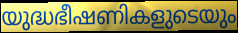
യുദ്ധഭീഷണികളുടെയും